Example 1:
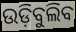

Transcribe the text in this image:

ଉଡ଼ିବୁଲିବ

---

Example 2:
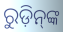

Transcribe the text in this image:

ରୁଡ଼ିନ୍‌ଙ୍କ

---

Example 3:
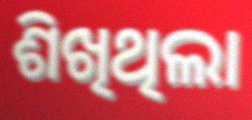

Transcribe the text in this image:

ଶିଖିଥିଲା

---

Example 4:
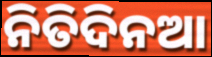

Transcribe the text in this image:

ନିତିଦିନଆ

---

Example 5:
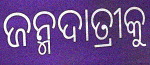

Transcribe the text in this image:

ଜନ୍ମଦାତ୍ରୀକୁ